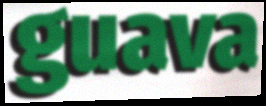
guava